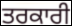
ਤਰਕਾਰੀ